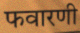
फवारणी